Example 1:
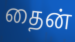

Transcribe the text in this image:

தைன்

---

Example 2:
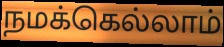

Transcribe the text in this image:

நமக்கெல்லாம்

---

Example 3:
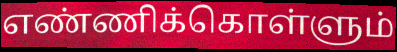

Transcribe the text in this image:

எண்ணிக்கொள்ளும்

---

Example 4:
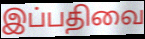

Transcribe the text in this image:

இப்பதிவை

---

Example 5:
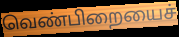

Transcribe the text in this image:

வெண்பிறையைச்